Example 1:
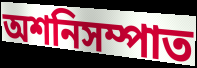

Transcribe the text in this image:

অশনিসম্পাত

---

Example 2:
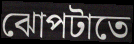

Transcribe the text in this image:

ঝোপটাতে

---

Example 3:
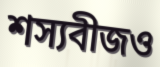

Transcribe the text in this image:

শস্যবীজও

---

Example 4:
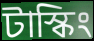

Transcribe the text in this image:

টাস্কিং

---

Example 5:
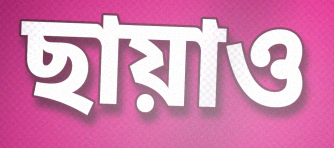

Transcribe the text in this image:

ছায়াও